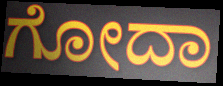
ಗೋದಾ